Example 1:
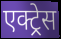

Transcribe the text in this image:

एक्ट्र्रेस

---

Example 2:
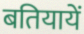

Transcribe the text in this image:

बतियायें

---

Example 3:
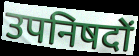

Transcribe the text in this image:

उपनिषदों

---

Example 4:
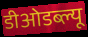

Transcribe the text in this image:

डीओडब्ल्यू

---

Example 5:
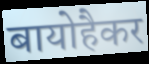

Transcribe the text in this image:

बायोहैकर